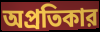
অপ্রতিকার